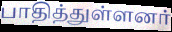
பாதித்துள்ளனர்